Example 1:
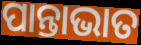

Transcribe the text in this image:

ପାନ୍ତାଭାତ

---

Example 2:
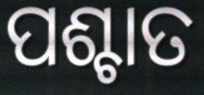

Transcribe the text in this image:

ପଶ୍ଚାତ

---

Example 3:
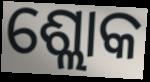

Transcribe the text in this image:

ଶ୍ଲୋକ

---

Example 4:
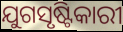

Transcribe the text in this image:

ଯୁଗସୃଷ୍ଟିକାରୀ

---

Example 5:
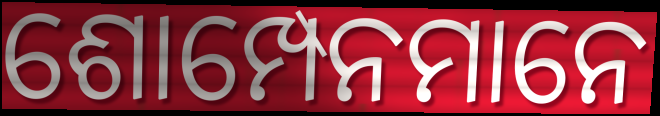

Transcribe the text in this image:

ଶୋମ୍ପେନମାନେ